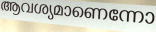
ആവശ്യമാണെന്നോ